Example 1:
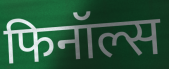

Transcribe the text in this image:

फिनॉल्स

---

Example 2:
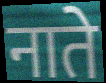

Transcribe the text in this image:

नाते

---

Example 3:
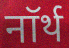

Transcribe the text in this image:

नॉर्थ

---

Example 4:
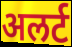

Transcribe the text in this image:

अलर्ट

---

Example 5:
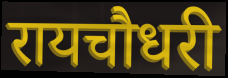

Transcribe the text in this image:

रायचौधरी